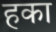
हका